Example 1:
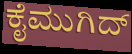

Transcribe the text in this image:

ಕೈಮುಗಿದ್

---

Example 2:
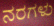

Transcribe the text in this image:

ನರಗಳು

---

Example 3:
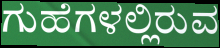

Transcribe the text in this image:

ಗುಹೆಗಳಲ್ಲಿರುವ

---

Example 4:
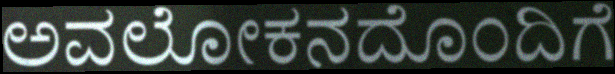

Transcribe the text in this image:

ಅವಲೋಕನದೊಂದಿಗೆ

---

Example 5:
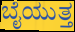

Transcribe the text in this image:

ಬೈಯುತ್ತ